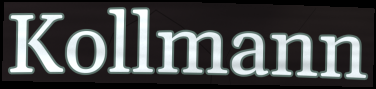
Kollmann